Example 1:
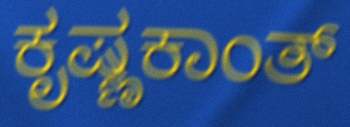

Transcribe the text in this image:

ಕೃಷ್ಣಕಾಂತ್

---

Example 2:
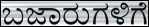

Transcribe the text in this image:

ಬಜಾರುಗಳಿಗೆ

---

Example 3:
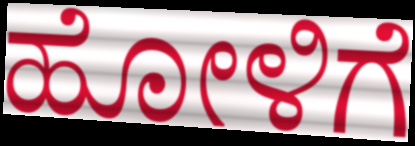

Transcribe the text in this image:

ಹೋಳಿಗೆ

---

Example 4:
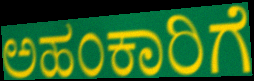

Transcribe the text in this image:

ಅಹಂಕಾರಿಗೆ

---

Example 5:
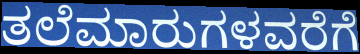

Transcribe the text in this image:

ತಲೆಮಾರುಗಳವರೆಗೆ